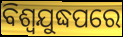
ବିଶ୍ୱଯୁଦ୍ଧପରେ